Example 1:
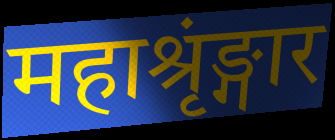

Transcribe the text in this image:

महाश्रृंङ्गार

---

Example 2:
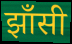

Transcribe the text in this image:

झाँसी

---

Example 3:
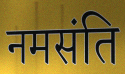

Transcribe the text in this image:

नमसंति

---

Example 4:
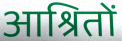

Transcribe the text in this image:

आश्रितों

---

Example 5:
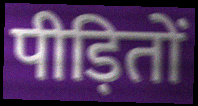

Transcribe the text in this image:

पीड़ितों